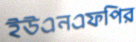
ইউএনএফপির